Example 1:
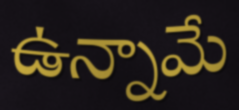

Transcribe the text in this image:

ఉన్నామే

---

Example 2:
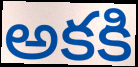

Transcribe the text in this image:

అకకి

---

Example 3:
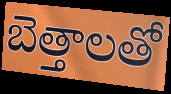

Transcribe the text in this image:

బెత్తాలతో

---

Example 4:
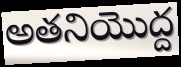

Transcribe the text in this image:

అతనియొద్ద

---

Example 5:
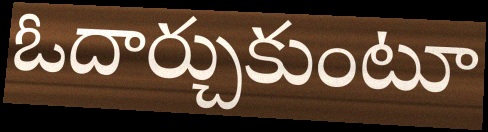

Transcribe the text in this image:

ఓదార్చుకుంటూ